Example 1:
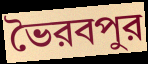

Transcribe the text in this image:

ভৈরবপুর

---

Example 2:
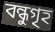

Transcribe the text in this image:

বন্ধুগৃহ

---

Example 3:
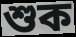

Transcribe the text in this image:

শুক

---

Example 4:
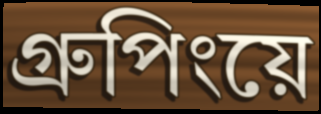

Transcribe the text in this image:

গ্রুপিংয়ে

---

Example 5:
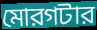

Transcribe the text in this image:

মোরগটার